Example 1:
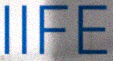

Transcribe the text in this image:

IIFE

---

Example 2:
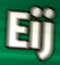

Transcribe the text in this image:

Eij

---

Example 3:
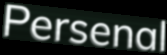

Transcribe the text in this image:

Persenal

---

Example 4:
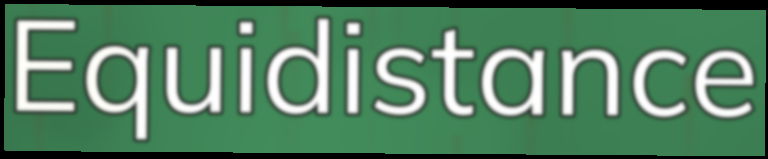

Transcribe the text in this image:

Equidistance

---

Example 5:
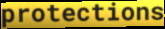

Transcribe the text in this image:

protections